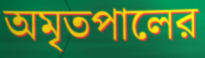
অমৃতপালের